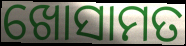
ଖୋସାମତ